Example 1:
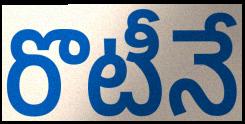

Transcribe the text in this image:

రొటీనే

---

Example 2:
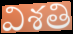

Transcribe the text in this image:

విశతి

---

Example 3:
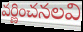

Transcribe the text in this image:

వర్ణించనలవి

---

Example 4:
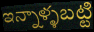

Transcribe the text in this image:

ఇన్నాళ్ళబట్టి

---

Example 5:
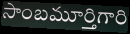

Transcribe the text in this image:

సాంబమూర్తిగారి